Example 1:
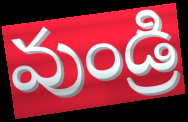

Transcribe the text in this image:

వుండ్రి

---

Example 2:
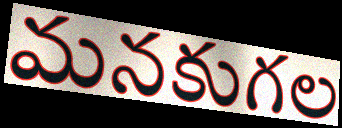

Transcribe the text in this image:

మనకుగల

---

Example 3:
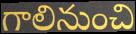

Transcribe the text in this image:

గాలినుంచి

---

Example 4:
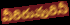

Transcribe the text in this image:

వీరిరువురినీ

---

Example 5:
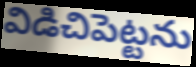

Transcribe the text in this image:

విడిచిపెట్టను